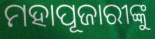
ମହାପୂଜାରୀଙ୍କୁ